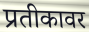
प्रतीकावर